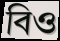
বিও